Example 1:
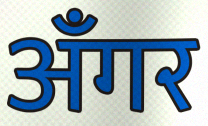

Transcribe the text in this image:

अँगर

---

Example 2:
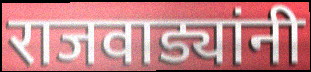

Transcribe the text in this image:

राजवाड्यांनी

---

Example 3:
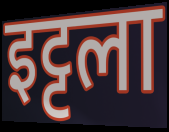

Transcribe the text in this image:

इट्टला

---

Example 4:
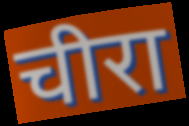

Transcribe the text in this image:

चीरा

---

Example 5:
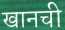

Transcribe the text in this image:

खानची